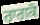
ਰਾਗਕੋ